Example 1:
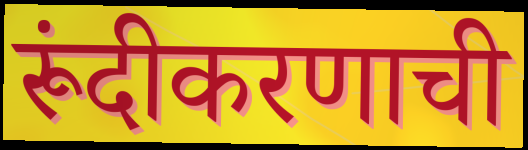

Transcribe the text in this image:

रूंदीकरणाची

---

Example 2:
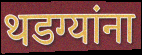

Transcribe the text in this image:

थडग्यांना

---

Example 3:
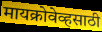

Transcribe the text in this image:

मायक्रोवेव्हसाठी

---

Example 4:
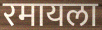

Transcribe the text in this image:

रमायला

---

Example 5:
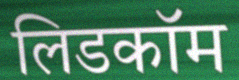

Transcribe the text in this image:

लिडकॉम